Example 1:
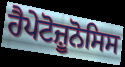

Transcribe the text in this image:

ਹੈਪੇਟੋਜ਼ੂਨੋਸਿਸ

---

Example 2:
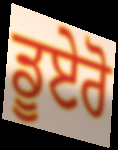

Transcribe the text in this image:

ਡੂਏਰੋ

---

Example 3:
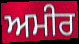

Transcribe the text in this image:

ਅਮੀਰ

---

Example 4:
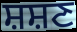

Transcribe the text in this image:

ਸ਼ਸ਼ਣ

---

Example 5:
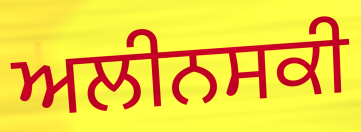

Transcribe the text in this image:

ਅਲੀਨਸਕੀ